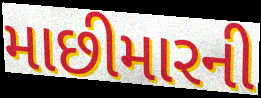
માછીમારની